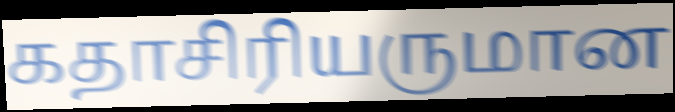
கதாசிரியருமான